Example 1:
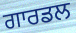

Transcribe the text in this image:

ਗਾਰਡਲ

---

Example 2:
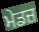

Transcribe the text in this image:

ਮੇਡਜ਼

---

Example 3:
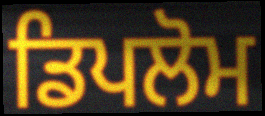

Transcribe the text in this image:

ਡਿਪਲੋਮ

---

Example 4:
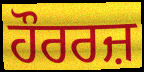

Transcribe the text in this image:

ਹੌਰਰਜ਼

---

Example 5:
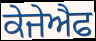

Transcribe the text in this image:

ਕੇਜੇਐਫ